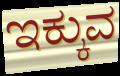
ಇಕ್ಕುವ